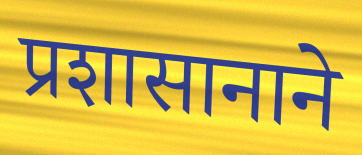
प्रशासानाने